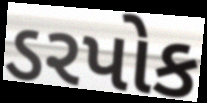
ડરપોક